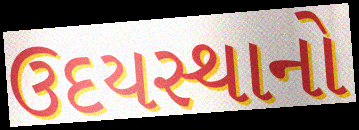
ઉદયસ્થાનો